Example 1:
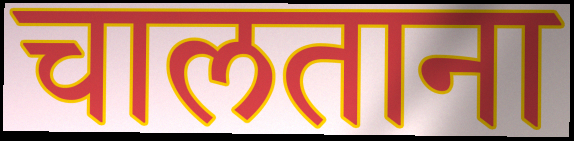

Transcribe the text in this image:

चालताना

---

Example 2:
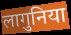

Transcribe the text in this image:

लागुनिया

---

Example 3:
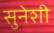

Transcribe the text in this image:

सुनेशी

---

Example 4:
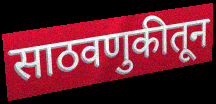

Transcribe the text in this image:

साठवणुकीतून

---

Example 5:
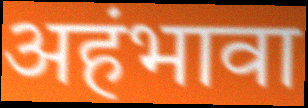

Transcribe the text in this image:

अहंभावा